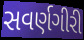
સવર્ણગીરી